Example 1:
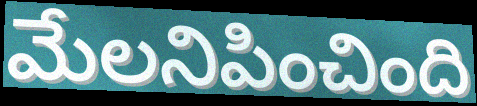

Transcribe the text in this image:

మేలనిపించింది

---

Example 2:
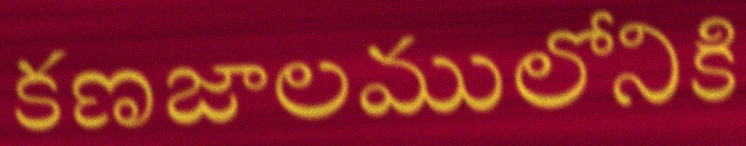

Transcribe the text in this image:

కణజాలములోనికి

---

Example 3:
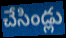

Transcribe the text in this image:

చేసిండ్లు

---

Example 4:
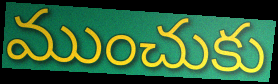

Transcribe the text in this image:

ముంచుకు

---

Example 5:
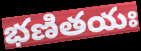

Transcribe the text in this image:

భణితయః